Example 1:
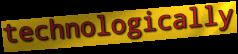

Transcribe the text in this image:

technologically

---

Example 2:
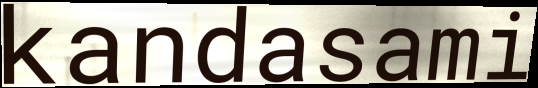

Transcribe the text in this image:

kandasami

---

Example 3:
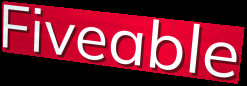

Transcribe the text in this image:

Fiveable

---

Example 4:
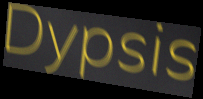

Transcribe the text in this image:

Dypsis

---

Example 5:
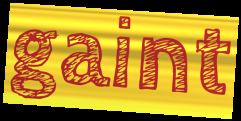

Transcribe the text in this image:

gaint